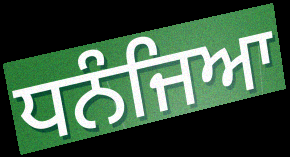
ਧਨੰਜਿਆ